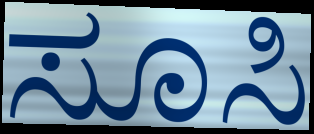
ಸೂಸಿ